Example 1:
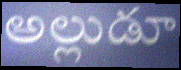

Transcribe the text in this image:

అల్లుడూ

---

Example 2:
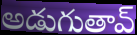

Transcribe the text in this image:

అడుగుతావ్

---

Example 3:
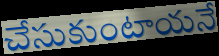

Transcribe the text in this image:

చేసుకుంటాయనే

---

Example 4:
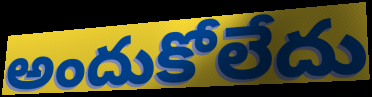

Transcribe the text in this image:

అందుకోలేదు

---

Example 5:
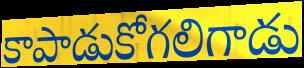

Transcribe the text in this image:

కాపాడుకోగలిగాడు